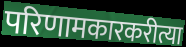
परिणामकारकरीत्या